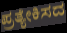
ಪ್ರತ್ಯೇಕಿಸದ